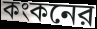
কংকনের